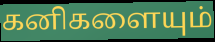
கனிகளையும்